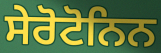
ਸੇਰੋਟੋਨਿਨ